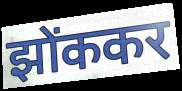
झोंककर